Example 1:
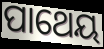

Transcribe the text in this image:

ପାଥେୟ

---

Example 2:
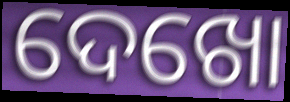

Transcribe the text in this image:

ଦେଖୋ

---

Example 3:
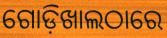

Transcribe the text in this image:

ଗୋଡ଼ିଖାଲଠାରେ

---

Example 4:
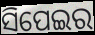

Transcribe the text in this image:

ସିପେଇର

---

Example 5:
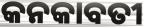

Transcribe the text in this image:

କନକାବତୀ